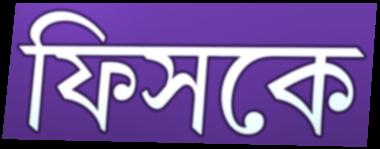
ফিসকে